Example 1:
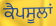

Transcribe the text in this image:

ਕੈਪਸੂਲਾਂ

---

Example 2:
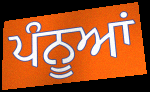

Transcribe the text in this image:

ਪੰਨੂਆਂ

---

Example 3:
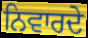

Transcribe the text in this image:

ਨਿਵਾਰਦੇ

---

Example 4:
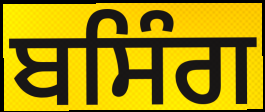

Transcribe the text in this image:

ਬਸਿੰਗ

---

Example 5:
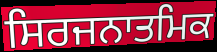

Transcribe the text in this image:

ਸਿਰਜਨਾਤਮਿਕ